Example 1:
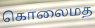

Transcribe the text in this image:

கொலைமத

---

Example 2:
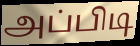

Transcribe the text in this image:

அப்பிடி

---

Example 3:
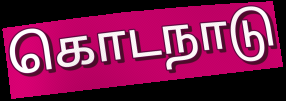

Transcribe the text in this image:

கொடநாடு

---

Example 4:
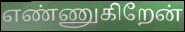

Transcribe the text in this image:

எண்ணுகிறேன்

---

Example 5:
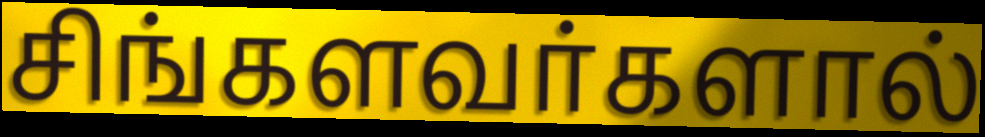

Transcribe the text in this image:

சிங்களவர்களால்